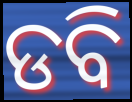
ଡବି